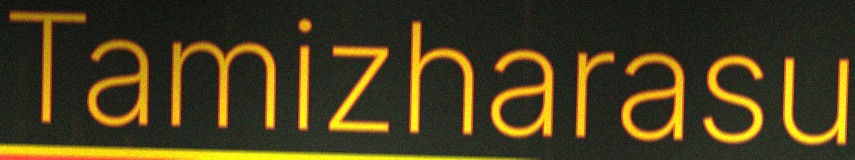
Tamizharasu